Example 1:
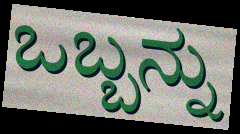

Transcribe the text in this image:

ಒಬ್ಬನ್ನು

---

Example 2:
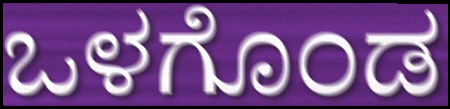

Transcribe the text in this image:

ಒಳಗೊಂಡ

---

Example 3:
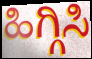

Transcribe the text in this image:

ಹಿಗ್ಗಿಸಿ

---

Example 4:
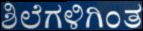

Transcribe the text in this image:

ಶಿಲೆಗಳಿಗಿಂತ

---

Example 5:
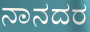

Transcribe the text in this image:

ನಾನದರ